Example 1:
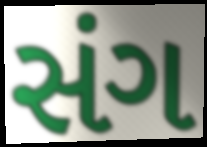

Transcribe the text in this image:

સંગ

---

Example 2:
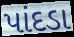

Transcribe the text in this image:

પાંદડા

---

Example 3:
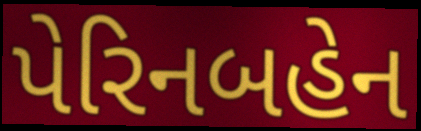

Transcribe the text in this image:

પેરિનબહેન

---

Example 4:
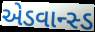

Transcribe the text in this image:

એડવાન્સ્ડ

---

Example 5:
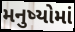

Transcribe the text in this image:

મનુષ્યોમાં